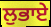
ਲੁਭਾਏ